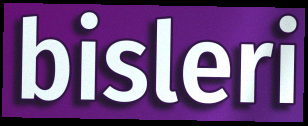
bisleri